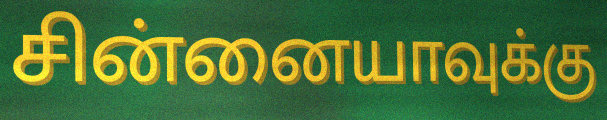
சின்னையாவுக்கு